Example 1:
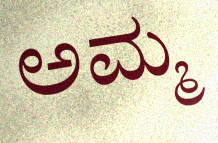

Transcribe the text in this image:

ಅಮ್ಮ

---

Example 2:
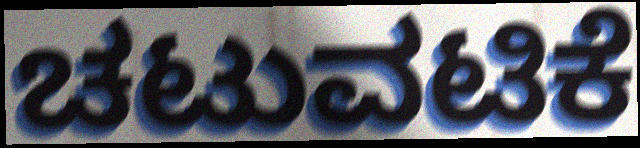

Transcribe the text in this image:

ಚಟುವಟಿಕೆ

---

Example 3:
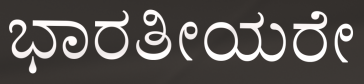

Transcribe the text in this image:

ಭಾರತೀಯರೇ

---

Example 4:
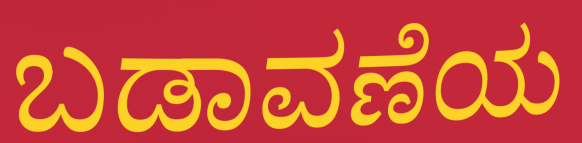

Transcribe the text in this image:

ಬಡಾವಣೆಯ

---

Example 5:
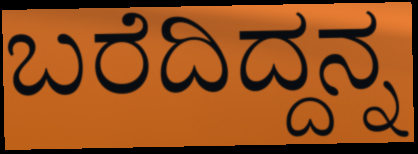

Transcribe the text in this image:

ಬರೆದಿದ್ದನ್ನ